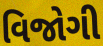
વિજોગી